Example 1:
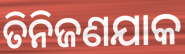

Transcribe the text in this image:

ତିନିଜଣଯାକ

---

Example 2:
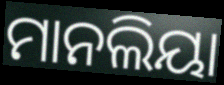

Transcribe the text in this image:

ମାନଲିୟା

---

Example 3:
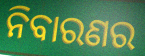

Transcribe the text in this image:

ନିବାରଣର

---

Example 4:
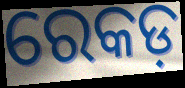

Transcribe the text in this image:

ରେକଡ଼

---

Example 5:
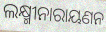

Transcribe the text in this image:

ଲକ୍ଷ୍ମୀନାରାୟଣନ